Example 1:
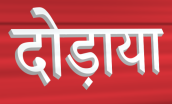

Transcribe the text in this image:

दोड़ाया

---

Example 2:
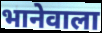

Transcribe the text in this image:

भानेवाला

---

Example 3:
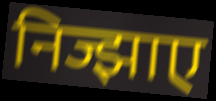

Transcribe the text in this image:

निज्झाए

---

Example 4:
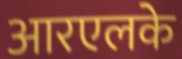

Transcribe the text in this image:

आरएलके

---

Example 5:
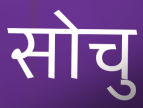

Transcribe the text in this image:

सोचु